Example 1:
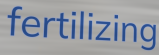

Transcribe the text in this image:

fertilizing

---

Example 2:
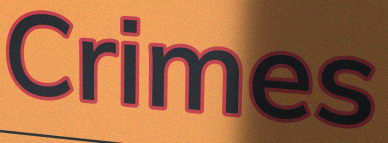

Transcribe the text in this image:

Crimes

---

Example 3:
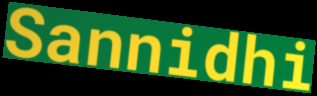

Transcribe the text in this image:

Sannidhi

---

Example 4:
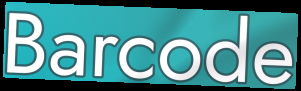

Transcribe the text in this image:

Barcode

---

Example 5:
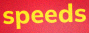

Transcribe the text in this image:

speeds